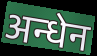
अन्धेन